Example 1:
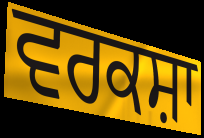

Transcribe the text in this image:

ਵਰਕਸ਼ਾ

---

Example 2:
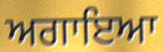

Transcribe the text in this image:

ਅਗਾਇਆ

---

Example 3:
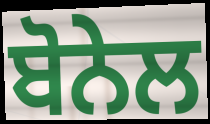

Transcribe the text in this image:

ਬੋਨੇਲ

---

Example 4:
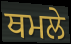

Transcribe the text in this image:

ਥਮਲੇ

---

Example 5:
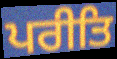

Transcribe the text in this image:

ਪਰੀਤਿ